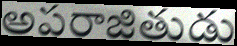
అపరాజితుడు